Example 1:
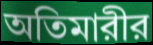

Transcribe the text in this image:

অতিমারীর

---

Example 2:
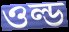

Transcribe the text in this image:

ওল্ড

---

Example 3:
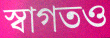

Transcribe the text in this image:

স্বাগতও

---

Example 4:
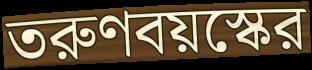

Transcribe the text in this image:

তরুণবয়স্কের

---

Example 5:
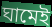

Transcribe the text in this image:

ঘামেই